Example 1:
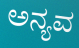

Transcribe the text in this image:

ಅನ್ಯವ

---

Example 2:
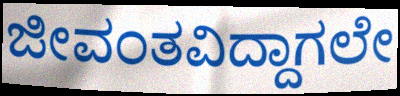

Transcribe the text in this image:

ಜೀವಂತವಿದ್ದಾಗಲೇ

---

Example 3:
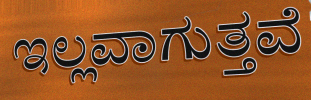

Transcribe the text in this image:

ಇಲ್ಲವಾಗುತ್ತವೆ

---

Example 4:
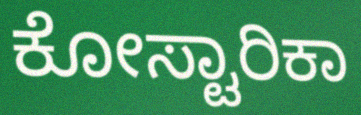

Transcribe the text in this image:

ಕೋಸ್ಟಾರಿಕಾ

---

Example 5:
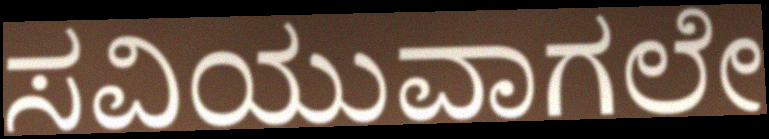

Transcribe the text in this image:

ಸವಿಯುವಾಗಲೇ